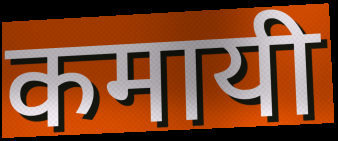
कमायी